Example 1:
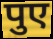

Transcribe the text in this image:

पुए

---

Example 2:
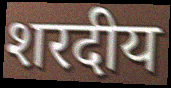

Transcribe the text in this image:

शरदीय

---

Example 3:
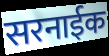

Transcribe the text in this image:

सरनाईक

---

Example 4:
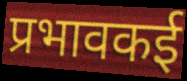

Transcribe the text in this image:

प्रभावकई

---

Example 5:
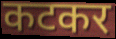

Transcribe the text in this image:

कटकर